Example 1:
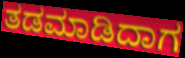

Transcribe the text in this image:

ತಡಮಾಡಿದಾಗ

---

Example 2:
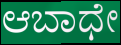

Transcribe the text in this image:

ಆಬಾಧೇ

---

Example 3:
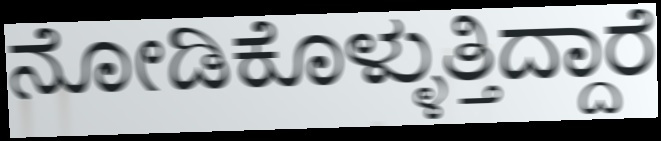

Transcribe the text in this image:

ನೋಡಿಕೊಳ್ಳುತ್ತಿದ್ದಾರೆ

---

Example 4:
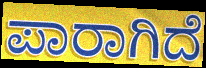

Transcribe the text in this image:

ಪಾರಾಗಿದೆ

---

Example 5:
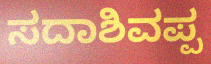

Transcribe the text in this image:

ಸದಾಶಿವಪ್ಪ